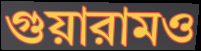
গুয়ারামও